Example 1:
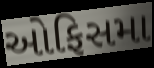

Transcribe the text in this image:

ઓફિસમા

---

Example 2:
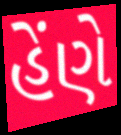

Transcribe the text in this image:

હેંણે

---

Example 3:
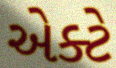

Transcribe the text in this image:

એક્ટે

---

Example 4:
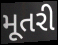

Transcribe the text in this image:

મૂતરી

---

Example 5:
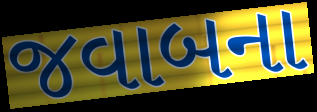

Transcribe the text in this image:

જવાબના